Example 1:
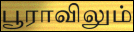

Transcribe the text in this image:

பூராவிலும்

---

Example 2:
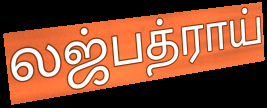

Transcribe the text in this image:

லஜ்பத்ராய்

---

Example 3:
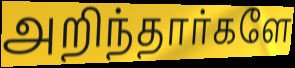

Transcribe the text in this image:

அறிந்தார்களே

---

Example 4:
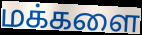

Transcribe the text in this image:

மக்களை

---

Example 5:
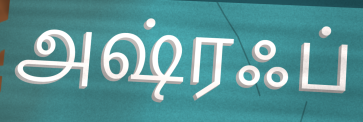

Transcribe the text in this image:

அஷ்ரஃப்